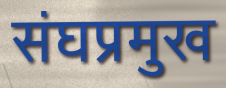
संघप्रमुख